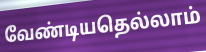
வேண்டியதெல்லாம்